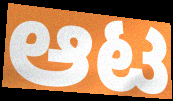
ಆಟ